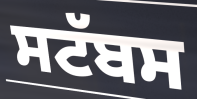
ਸਟੱਬਸ